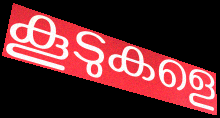
കൂടുകളെ